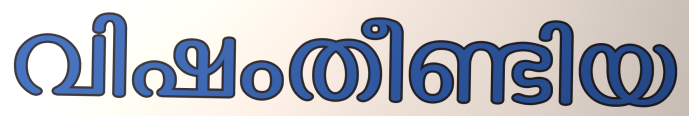
വിഷംതീണ്ടിയ